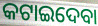
କଟାଇଦେବା